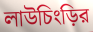
লাউচিংড়ির